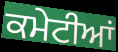
ਕਮੇਟੀਆਂ